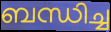
ബന്ധിച്ച